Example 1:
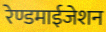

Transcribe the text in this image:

रेण्डमाईजेशन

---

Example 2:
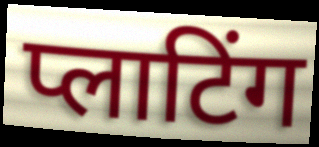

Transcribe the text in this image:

प्लाटिंग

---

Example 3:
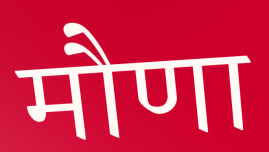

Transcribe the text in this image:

मौणा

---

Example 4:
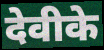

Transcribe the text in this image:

देवीके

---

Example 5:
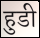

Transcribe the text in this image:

हुडी